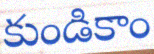
కుండికాం